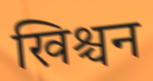
खिश्चन